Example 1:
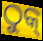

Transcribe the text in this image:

ଠୁକ୍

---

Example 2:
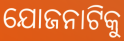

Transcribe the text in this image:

ଯୋଜନାଟିକୁ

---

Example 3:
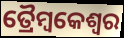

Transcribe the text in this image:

ତ୍ରୈମ୍ବକେଶ୍ୱର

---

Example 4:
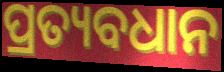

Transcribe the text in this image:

ପ୍ରତ୍ୟବଧାନ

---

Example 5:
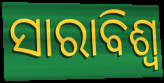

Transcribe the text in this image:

ସାରାବିଶ୍ବ